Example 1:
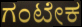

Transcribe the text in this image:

ಗಂಟೇಕ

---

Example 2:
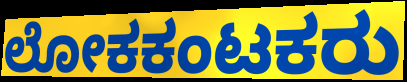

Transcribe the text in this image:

ಲೋಕಕಂಟಕರು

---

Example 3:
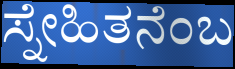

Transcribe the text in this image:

ಸ್ನೇಹಿತನೆಂಬ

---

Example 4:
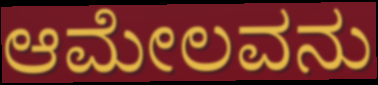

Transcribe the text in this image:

ಆಮೇಲವನು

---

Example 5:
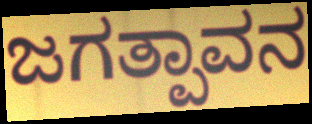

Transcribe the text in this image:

ಜಗತ್ಪಾವನ